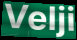
Velji